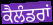
ਕੈਲੰਡਰਾਂ